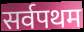
सर्वपथम